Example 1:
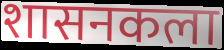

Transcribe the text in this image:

शासनकला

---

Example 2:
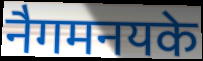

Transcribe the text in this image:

नैगमनयके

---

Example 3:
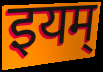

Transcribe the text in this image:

इयम्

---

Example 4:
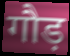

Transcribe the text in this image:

गौड़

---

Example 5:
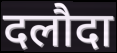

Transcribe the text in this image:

दलौदा